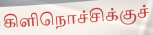
கிளிநொச்சிக்குச்